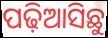
ପଢ଼ିଆସିଛୁ